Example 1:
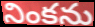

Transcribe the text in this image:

నింకను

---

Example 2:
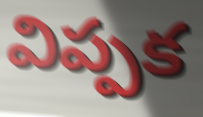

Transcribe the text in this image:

విప్పక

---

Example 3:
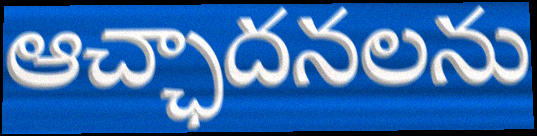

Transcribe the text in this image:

ఆచ్ఛాదనలను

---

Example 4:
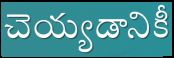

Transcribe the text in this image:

చెయ్యడానికీ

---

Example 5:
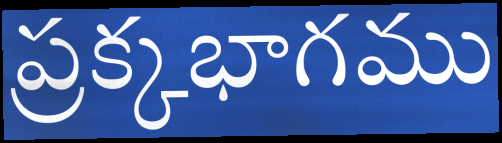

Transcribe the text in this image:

ప్రక్కభాగము